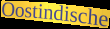
Oostindische